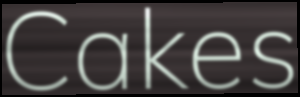
Cakes